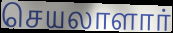
செயலாளார்